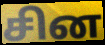
சின